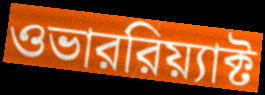
ওভাররিয়্যাক্ট